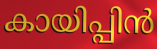
കായിപ്പിൻ